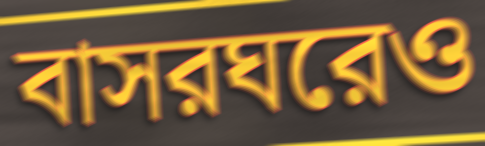
বাসরঘরেও